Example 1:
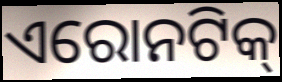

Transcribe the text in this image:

ଏରୋନଟିକ୍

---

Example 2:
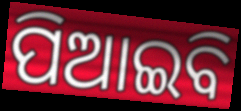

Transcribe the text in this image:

ପିଆଇବି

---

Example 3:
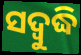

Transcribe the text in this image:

ସଦ୍ବୁଦ୍ଧି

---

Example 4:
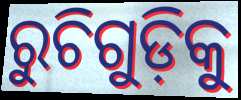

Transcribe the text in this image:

ରୁଚିଗୁଡ଼ିକୁ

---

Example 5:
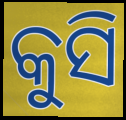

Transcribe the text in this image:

କୁସି